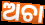
ଅଚା